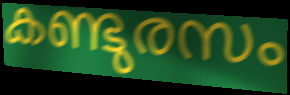
കണ്ടുരസം